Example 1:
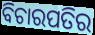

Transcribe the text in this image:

ବିଚାରପତିର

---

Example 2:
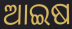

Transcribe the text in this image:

ଆଇଷ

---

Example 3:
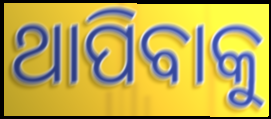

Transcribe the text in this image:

ଥାପିବାକୁ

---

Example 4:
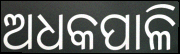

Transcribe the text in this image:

ଅଧକପାଳି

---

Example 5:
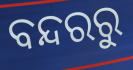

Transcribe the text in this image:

ବନ୍ଦରରୁ